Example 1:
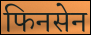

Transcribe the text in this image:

फिनसेन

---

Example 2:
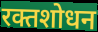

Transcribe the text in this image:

रक्तशोधन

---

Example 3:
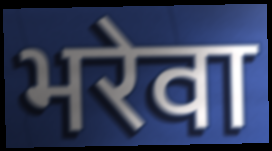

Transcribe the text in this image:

भरेवा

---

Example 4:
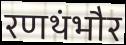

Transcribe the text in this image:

रणथंभौर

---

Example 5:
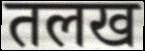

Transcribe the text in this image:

तलख